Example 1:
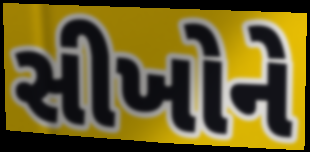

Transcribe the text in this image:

સીખોને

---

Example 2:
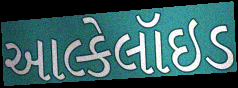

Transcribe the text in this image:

આલ્કેલૉઇડ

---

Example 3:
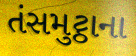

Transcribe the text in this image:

તંસમુટ્ઠાના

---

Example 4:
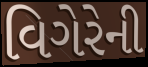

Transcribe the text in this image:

વિગેરેની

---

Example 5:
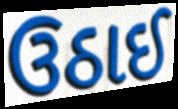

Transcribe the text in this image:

ઉઠાઈ